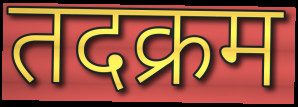
तदक्रम